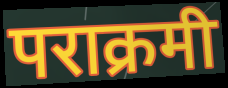
पराक्रमी